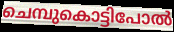
ചെമ്പുകൊട്ടിപോൽ